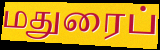
மதுரைப்